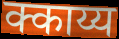
क्काय्य